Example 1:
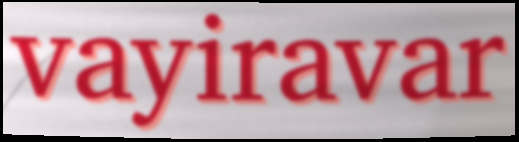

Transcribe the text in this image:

vayiravar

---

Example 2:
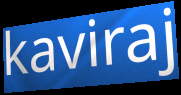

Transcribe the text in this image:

kaviraj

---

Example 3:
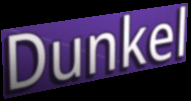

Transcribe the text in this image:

Dunkel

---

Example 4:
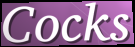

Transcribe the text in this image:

Cocks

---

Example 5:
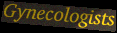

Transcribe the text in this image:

Gynecologists